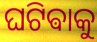
ଘଟିଵାକୁ